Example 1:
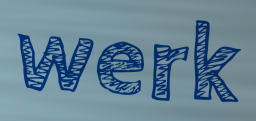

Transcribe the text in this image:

werk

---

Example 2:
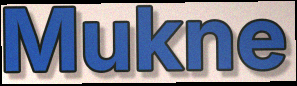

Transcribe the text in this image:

Mukne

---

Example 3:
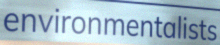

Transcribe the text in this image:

environmentalists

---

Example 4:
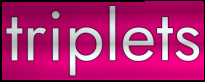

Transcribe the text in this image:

triplets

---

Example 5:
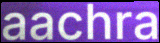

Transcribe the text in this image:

aachra